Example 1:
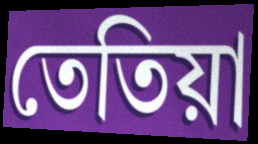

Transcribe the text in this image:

তেতিয়া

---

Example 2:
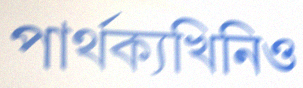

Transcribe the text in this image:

পাৰ্থক্যখিনিও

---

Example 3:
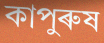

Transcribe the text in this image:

কাপুৰুষ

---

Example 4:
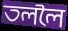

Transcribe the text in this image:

তললৈ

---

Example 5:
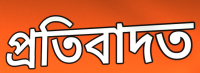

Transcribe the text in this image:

প্ৰতিবাদত